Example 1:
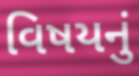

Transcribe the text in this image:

વિષયનું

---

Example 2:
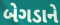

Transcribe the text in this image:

બેગડાને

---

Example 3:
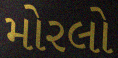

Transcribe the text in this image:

મોરલો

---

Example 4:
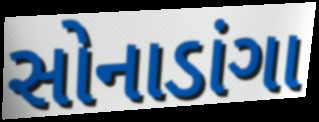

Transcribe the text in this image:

સોનાડાંગા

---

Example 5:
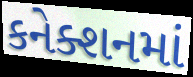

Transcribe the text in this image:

કનેક્શનમાં